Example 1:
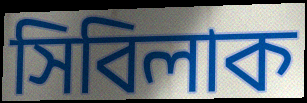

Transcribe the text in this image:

সিবিলাক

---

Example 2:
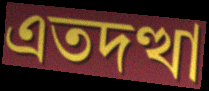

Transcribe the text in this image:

এতদত্থা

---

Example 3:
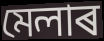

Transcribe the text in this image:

মেলাৰ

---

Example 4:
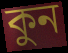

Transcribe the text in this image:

কুন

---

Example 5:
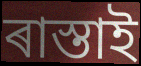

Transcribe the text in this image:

ৰাস্তাই